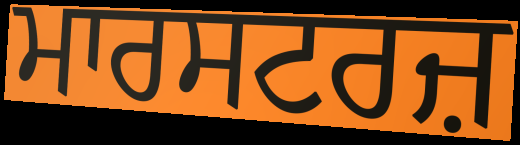
ਮਾਰਸਟਰਜ਼